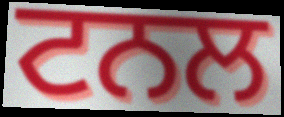
ਟਨਲ